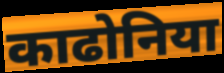
काढोनिया